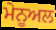
ਮੇਨੂਅਲ